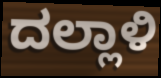
ದಲ್ಲಾಳಿ